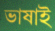
ভাষাই